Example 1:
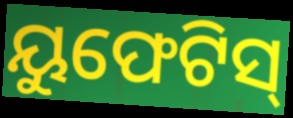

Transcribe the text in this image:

ୟୁଫେଟିସ୍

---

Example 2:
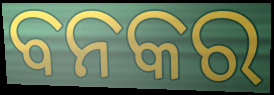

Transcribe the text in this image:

ବନକର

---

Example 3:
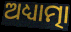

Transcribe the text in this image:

ଅଧ୍ୟାତ୍ମା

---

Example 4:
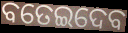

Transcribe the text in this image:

ବତେଇଦେବ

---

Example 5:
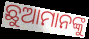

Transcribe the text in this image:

ଛୁଆମାନଙ୍କୁ